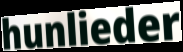
hunlieder